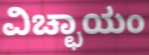
ವಿಚ್ಛಾಯಂ